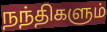
நந்திகளும்